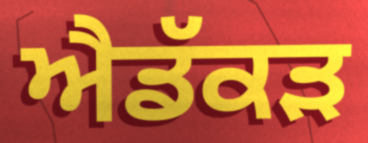
ਐਡੱਕੜ